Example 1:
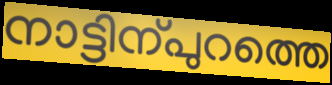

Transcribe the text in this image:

നാട്ടിന്പുറത്തെ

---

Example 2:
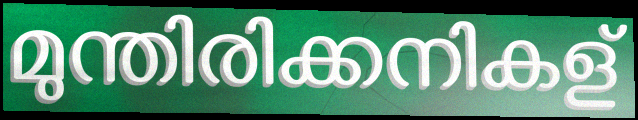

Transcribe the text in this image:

മുന്തിരിക്കനികള്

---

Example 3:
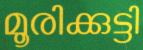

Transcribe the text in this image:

മൂരിക്കുട്ടി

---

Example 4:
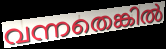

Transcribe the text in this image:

വന്നതെങ്കിൽ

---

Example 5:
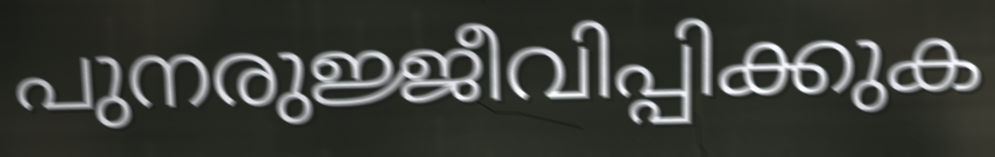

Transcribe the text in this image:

പുനരുജ്ജീവിപ്പിക്കുക